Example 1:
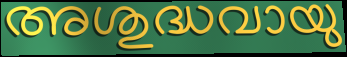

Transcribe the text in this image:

അശുദ്ധവായു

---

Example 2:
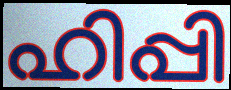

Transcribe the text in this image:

ഹിപ്പി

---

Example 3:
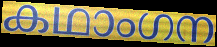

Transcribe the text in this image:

കഥാംഗന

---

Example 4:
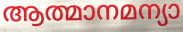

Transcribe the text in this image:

ആത്മാനമന്യാ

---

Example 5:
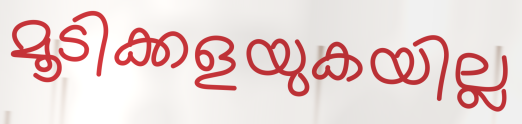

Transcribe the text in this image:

മൂടിക്കളയുകയില്ല